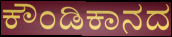
ಕೌಂಡಿಕಾನದ